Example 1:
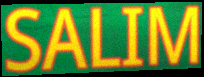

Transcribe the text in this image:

SALIM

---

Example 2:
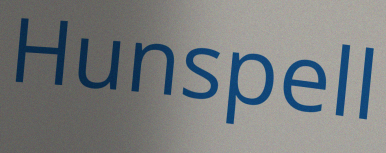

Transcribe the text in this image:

Hunspell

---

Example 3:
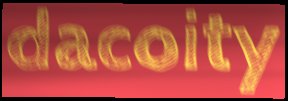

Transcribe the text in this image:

dacoity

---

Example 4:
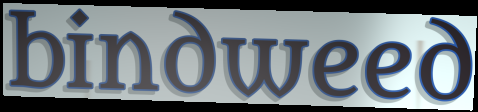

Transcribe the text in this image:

bindweed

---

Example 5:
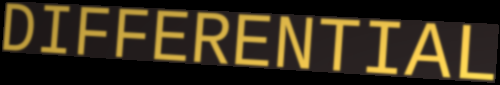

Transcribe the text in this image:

DIFFERENTIAL